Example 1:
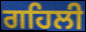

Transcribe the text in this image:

ਗਹਿਲੀ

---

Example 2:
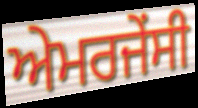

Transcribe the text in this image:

ਅੇਮਰਜੇਂਸੀ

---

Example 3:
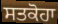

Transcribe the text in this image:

ਸਤਕੋਹਾ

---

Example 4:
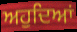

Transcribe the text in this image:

ਅਹੁਦਿਆਂ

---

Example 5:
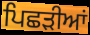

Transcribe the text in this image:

ਪਿਛੜੀਆਂ